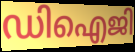
ഡിഐജി